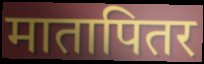
मातापितर